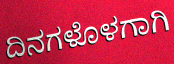
ದಿನಗಳೊಳಗಾಗಿ